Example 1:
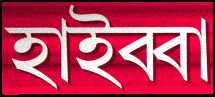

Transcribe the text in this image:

হাইব্বা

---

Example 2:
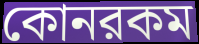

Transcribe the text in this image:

কোনরকম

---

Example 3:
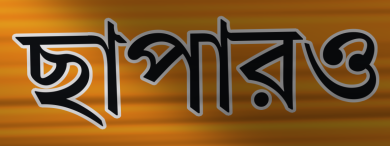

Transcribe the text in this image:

ছাপারও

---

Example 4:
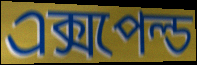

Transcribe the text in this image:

এক্সপেল্ড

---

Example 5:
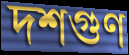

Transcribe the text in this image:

দশগুণ